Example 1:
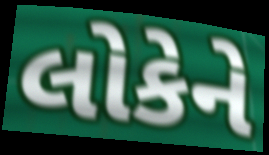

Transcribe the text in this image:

લોકેને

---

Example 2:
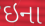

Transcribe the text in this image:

ઇના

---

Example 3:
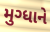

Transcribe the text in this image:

મુગ્ધાને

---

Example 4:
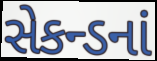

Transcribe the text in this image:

સેકન્ડનાં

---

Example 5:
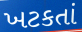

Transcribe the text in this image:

ખટકતાં